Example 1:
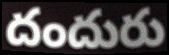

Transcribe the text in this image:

దందురు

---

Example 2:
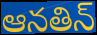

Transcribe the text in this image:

ఆనతిన్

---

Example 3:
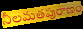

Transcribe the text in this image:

నీలమతపురాణం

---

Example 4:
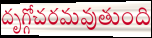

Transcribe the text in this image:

దృగ్గోచరమవుతుంది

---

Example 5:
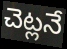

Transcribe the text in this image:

చెట్లనే